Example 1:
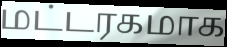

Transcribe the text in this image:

மட்டரகமாக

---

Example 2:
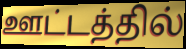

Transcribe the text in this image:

ஊட்டத்தில்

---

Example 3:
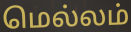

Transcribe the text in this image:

மெல்லம்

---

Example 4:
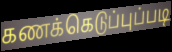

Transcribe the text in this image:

கணக்கெடுப்புப்படி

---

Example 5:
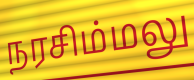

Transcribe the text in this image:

நரசிம்மலு